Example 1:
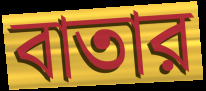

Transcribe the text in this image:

বাতার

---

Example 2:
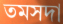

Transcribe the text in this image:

তমসদা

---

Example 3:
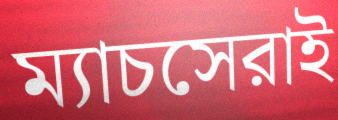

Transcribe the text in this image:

ম্যাচসেরাই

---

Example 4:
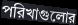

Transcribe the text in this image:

পরিখাগুলোর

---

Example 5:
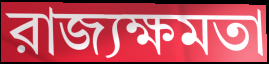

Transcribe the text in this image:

রাজ্যক্ষমতা